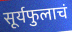
सूर्यफुलाचं